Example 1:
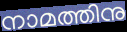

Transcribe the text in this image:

നാമത്തിനു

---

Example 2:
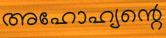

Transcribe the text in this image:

അഹോഹ്യന്റെ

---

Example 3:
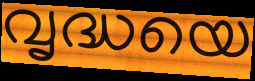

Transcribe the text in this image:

വൃദ്ധയെ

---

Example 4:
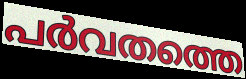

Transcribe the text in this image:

പർവതത്തെ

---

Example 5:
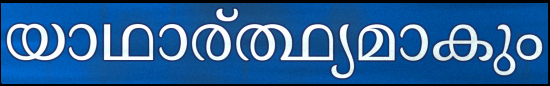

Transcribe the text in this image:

യാഥാര്ത്ഥ്യമാകും